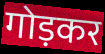
गोड़कर